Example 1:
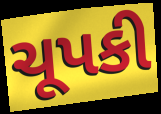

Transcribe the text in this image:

ચૂપકી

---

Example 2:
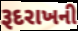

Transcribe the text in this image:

રૂદરાખની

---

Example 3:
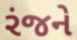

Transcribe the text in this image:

રંજને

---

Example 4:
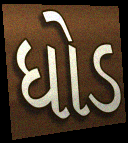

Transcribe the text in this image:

ધોડ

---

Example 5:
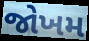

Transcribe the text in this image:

જોખમ